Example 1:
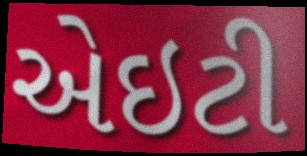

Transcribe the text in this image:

એઇટી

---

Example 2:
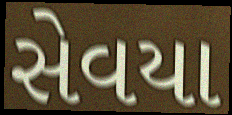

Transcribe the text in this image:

સેવયા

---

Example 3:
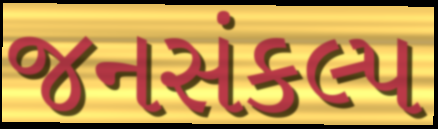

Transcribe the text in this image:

જનસંકલ્પ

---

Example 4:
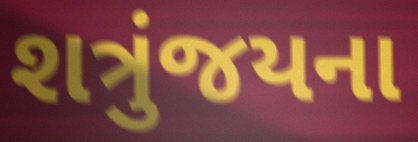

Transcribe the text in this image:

શત્રુંજયના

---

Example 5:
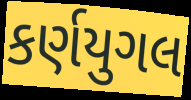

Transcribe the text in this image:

કર્ણયુગલ